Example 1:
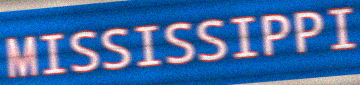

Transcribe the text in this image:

MISSISSIPPI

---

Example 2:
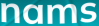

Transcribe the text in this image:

nams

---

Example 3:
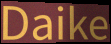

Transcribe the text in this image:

Daike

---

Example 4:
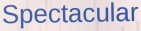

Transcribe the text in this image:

Spectacular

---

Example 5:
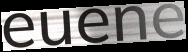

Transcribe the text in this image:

euene